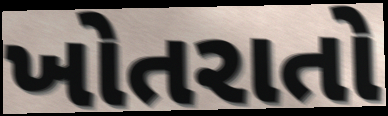
ખોતરાતો